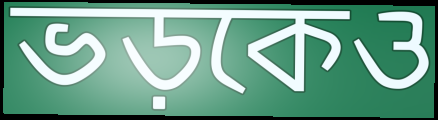
ভড়কেও